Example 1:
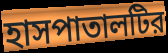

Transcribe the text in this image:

হাসপাতালটির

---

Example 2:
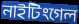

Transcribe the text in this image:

নাইটিংগেল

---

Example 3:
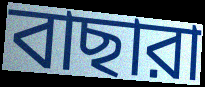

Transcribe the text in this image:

বাছারা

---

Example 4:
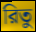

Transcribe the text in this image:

রিতু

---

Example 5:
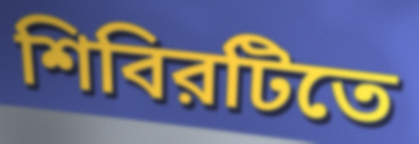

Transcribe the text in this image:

শিবিরটিতে